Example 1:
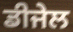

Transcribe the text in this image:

ਡੀਜੇਲ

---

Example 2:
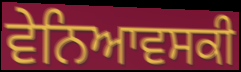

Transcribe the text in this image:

ਵੇਨਿਆਵਸਕੀ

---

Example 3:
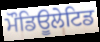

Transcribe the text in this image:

ਮੌਡਿਊਲੇਟਿਡ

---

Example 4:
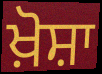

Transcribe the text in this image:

ਖ਼ੋਸ਼ਾ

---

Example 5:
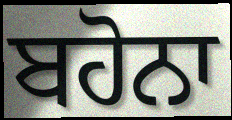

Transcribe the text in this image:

ਬਹੋਨਾ